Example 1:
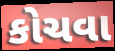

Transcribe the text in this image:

કોચવા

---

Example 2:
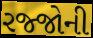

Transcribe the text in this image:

રજ્જોની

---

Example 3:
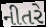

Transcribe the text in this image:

નીતરે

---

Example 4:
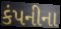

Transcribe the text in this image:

કંપનીના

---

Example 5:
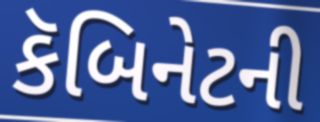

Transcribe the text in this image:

કૅબિનેટની